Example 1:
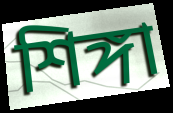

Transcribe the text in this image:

শিঙ্গা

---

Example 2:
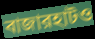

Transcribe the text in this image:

বাজারহাটও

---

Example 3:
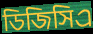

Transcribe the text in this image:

ডিজিসিএ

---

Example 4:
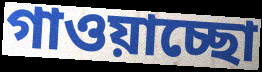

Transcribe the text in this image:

গাওয়াচ্ছো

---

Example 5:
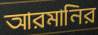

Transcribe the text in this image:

আরমানির